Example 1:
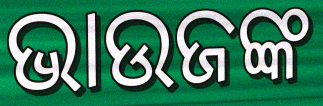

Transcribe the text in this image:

ଭାଉଜଙ୍କ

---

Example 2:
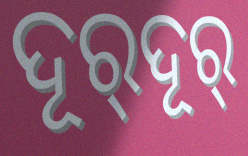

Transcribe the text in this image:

ଦୂର୍‌ଦୂର୍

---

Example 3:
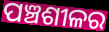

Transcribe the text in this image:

ପଞ୍ଚଶୀଳର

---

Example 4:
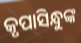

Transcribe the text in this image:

କୃପାସିନ୍ଧୁଙ୍କ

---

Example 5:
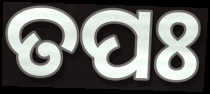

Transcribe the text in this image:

ତପଃ